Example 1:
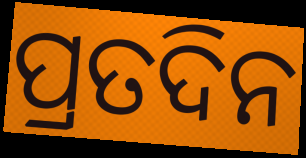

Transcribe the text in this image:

ପ୍ରତଦିନ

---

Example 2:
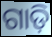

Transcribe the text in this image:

ଗାଡ଼ି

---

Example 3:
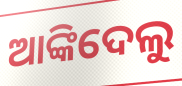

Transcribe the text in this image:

ଆଙ୍କିଦେଲୁ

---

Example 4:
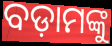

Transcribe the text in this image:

ବଡ଼ାମଙ୍କୁ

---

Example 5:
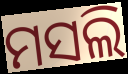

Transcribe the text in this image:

ମସଲି